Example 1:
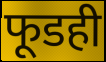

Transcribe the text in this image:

फूडही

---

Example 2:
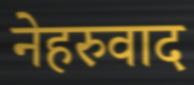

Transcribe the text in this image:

नेहरुवाद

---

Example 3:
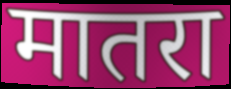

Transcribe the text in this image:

मातरा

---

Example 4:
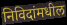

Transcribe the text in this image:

निविदांमधील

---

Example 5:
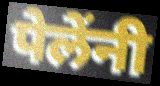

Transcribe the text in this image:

पेलेंनी